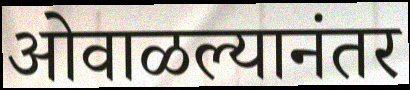
ओवाळल्यानंतर